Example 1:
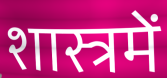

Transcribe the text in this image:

शास्त्रमें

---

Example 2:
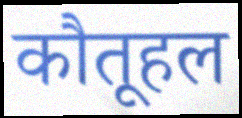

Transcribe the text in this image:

कौतूहल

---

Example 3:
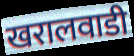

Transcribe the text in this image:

खरालवाडी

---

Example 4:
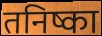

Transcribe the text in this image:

तनिष्का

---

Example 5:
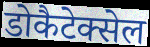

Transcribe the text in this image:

डोकैटेक्सेल